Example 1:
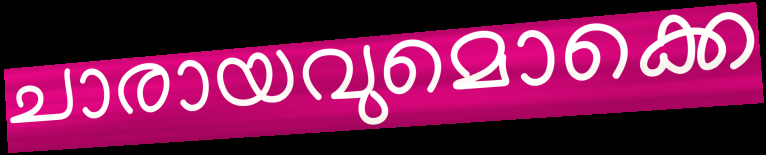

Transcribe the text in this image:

ചാരായവുമൊക്കെ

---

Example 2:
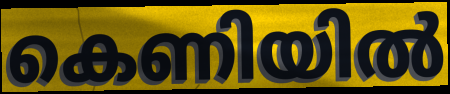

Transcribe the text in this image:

കെണിയിൽ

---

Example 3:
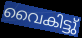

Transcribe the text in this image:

വൈകിട്ടു്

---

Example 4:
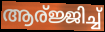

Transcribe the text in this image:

ആര്ജ്ജിച്ച്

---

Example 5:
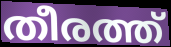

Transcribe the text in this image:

തീരത്ത്